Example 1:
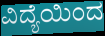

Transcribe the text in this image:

ವಿದ್ಯೆಯಿಂದ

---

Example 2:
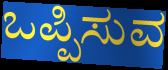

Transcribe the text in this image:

ಒಪ್ಪಿಸುವ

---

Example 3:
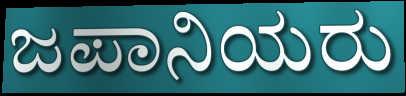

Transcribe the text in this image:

ಜಪಾನಿಯರು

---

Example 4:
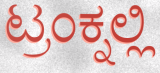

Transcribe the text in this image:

ಟ್ರಂಕ್ನಲ್ಲಿ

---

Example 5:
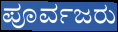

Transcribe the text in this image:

ಪೂರ್ವಜರು